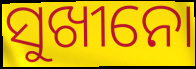
ସୁଖୀନୋ